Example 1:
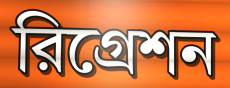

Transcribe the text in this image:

রিগ্রেশন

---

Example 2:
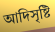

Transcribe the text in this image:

আদিসৃষ্টি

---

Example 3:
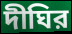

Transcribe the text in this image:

দীঘির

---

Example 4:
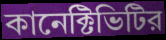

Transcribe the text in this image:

কানেক্টিভিটির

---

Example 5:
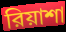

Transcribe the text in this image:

রিয়াশা